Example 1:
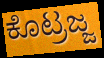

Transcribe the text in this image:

ಕೊಟ್ರಜ್ಜ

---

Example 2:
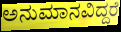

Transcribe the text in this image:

ಅನುಮಾನವಿದ್ದರೆ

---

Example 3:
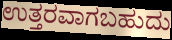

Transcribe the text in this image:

ಉತ್ತರವಾಗಬಹುದು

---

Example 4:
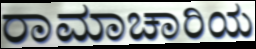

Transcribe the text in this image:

ರಾಮಾಚಾರಿಯ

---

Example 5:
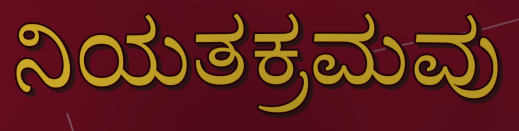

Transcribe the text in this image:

ನಿಯತಕ್ರಮವು